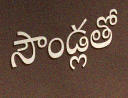
సౌండ్లతో